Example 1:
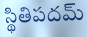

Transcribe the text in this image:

స్థితిపదమ్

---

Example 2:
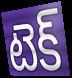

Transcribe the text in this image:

టెక్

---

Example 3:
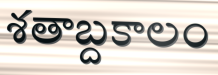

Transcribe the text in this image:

శతాబ్దకాలం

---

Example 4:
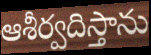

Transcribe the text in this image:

ఆశీర్వదిస్తాను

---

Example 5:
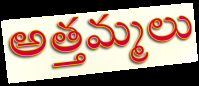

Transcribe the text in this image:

అత్తమ్మలు